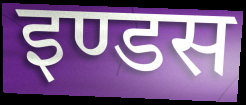
इण्डस